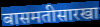
बासमतीसारखा